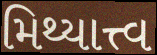
મિથ્યાત્ત્વ